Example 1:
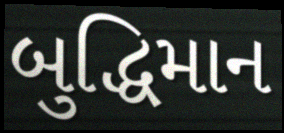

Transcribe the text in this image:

બુદ્ધિમાન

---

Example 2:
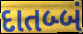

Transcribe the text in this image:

દાતબ્બં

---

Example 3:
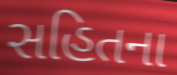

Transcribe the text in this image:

સહિતના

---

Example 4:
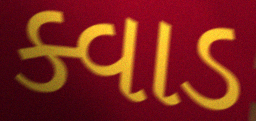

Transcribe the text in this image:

ક્વાડ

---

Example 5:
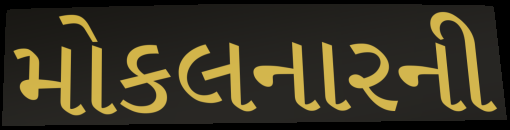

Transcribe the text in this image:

મોકલનારની